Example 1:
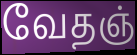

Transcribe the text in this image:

வேதஞ்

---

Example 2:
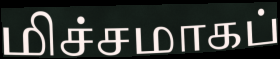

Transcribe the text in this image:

மிச்சமாகப்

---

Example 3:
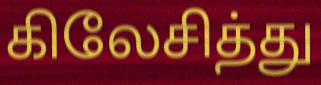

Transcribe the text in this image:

கிலேசித்து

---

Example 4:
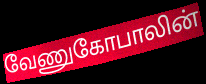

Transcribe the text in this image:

வேணுகோபாலின்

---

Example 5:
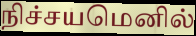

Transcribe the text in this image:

நிச்சயமெனில்